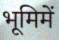
भूमिमें